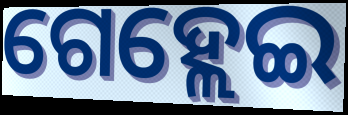
ଗେହ୍ଲେଇ